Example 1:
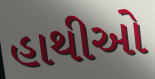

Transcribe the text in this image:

હાથીઓ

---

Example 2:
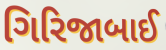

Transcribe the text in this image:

ગિરિજાબાઈ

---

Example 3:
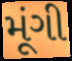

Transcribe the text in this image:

મૂંગી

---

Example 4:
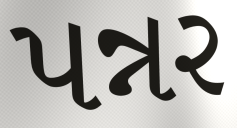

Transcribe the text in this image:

પન્નર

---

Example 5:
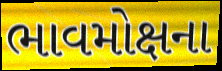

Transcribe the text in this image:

ભાવમોક્ષના